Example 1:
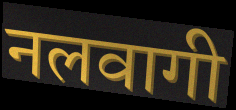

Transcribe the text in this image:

नलवागी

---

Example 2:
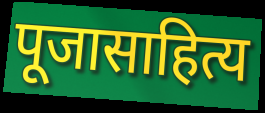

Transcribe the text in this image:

पूजासाहित्य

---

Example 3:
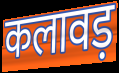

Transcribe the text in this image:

कलावड़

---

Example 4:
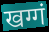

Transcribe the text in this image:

खग्गं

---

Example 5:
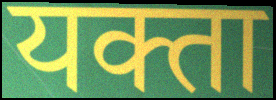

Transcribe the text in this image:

यक्ता